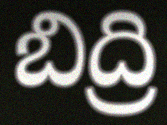
బిద్రి